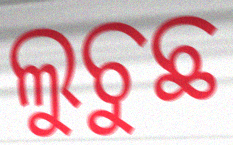
ଲୁଚୁଛ